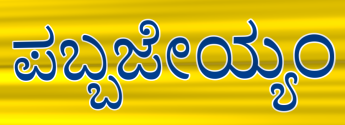
ಪಬ್ಬಜೇಯ್ಯಂ